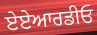
ਏਏਆਰਡੀਓ